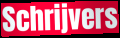
Schrijvers